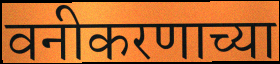
वनीकरणाच्या